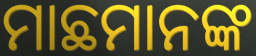
ମାଛମାନଙ୍କ